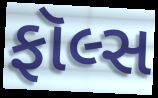
ફૉલ્સ